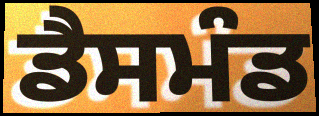
ਡੈਸਮੰਡ